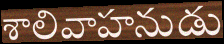
శాలివాహనుడు